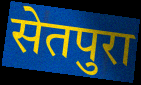
सेतपुरा